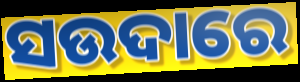
ସଉଦାରେ